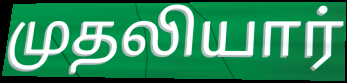
முதலியார்